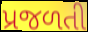
પ્રજળતી